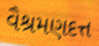
વૈશ્રમણદત્ત